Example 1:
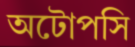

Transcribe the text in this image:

অটোপসি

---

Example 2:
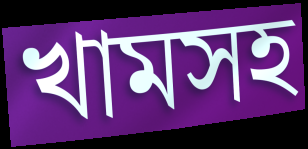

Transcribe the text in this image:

খামসহ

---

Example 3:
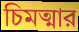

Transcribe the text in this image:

চিমত্মার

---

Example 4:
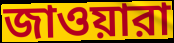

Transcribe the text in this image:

জাওয়ারা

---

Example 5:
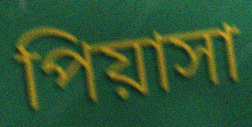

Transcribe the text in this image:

পিয়াসা